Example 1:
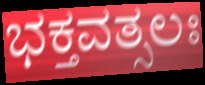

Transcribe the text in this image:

ಭಕ್ತವತ್ಸಲಃ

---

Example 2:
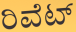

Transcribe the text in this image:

ರಿವೆಟ್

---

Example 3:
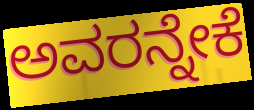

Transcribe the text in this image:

ಅವರನ್ನೇಕೆ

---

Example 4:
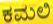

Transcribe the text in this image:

ಕಮಲಿ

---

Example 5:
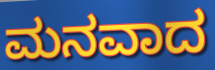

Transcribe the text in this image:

ಮನವಾದ